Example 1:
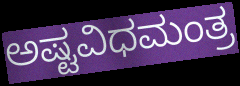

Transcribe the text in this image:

ಅಷ್ಟವಿಧಮಂತ್ರ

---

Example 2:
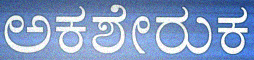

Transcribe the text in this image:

ಅಕಶೇರುಕ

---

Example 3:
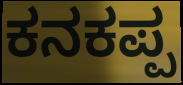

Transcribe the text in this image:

ಕನಕಪ್ಪ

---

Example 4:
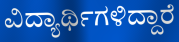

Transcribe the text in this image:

ವಿದ್ಯಾರ್ಥಿಗಳಿದ್ದಾರೆ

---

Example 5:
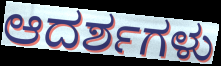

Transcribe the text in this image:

ಆದರ್ಶಗಳು